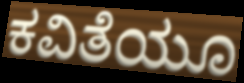
ಕವಿತೆಯೂ